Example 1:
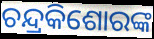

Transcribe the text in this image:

ଚନ୍ଦ୍ରକିଶୋରଙ୍କ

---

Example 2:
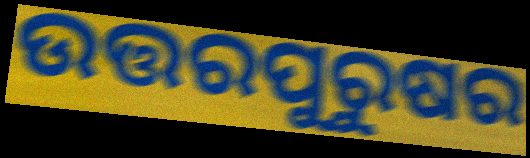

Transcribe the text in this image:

ଉତ୍ତରପୁରୁଷର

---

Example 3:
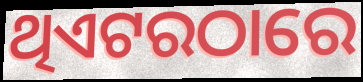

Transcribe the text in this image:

ଥିଏଟରଠାରେ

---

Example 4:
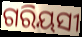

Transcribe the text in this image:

ଗରିୟସୀ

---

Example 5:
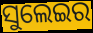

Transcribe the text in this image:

ସୁଲେଇର